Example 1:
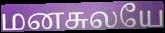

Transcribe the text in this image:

மனசுலயே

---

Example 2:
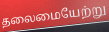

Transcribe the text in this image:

தலைமையேற்று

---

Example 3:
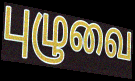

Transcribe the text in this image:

புழுவை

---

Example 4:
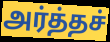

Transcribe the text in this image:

அர்த்தச்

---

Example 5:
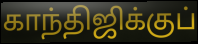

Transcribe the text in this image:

காந்திஜிக்குப்